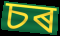
চৰ